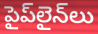
పైప్‌లైన్‌లు